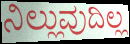
ನಿಲ್ಲುವುದಿಲ್ಲ